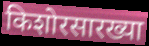
किशोरसारख्या